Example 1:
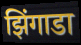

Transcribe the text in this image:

झिंगाडा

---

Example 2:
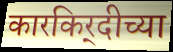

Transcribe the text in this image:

कारकिर्दीच्या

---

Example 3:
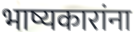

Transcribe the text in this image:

भाष्यकारांना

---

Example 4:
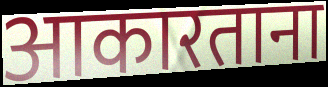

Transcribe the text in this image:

आकारताना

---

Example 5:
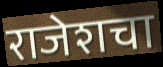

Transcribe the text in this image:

राजेशचा